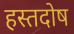
हस्तदोष